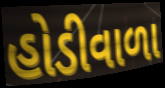
હોડીવાળા